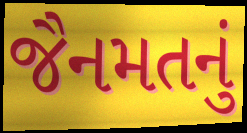
જૈનમતનું